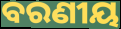
ବରଣୀୟ